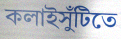
কলাইসুঁটিতে